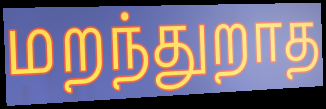
மறந்துறாத